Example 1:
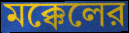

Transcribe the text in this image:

মক্কেলের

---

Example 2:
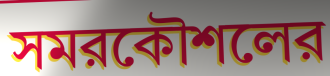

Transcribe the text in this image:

সমরকৌশলের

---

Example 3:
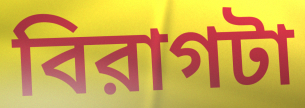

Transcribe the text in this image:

বিরাগটা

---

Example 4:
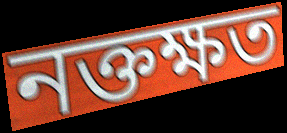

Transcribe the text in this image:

নক্তক্ষত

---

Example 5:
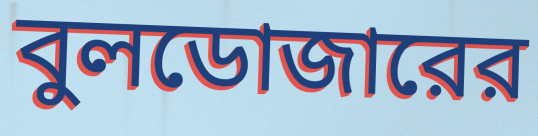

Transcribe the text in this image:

বুলডোজারের